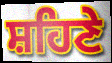
ਸ਼ਹਿਣੇ